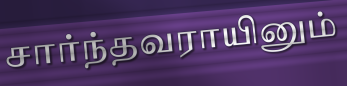
சார்ந்தவராயினும்